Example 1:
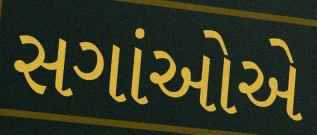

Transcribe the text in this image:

સગાંઓએ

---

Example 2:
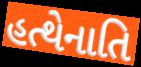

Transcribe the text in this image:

હત્થેનાતિ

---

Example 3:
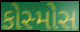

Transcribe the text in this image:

કોસ્મોસ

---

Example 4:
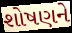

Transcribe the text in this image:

શોષણને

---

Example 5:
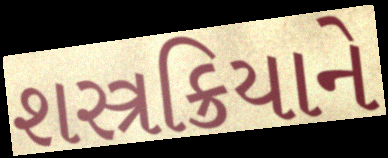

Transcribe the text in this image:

શસ્ત્રક્રિયાને